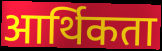
आर्थिकता